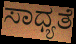
ಸಾಧ್ಯತೆ